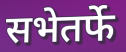
सभेतर्फे